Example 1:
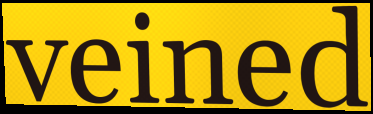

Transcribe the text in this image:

veined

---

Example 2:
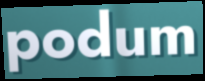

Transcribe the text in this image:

podum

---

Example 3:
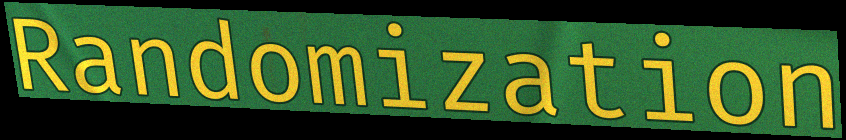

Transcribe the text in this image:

Randomization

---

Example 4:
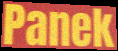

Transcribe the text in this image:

Panek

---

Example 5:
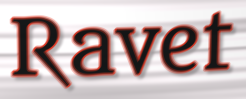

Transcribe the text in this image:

Ravet